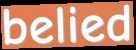
belied